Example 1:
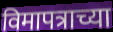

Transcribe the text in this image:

विमापत्राच्या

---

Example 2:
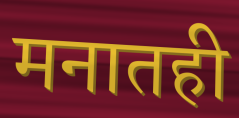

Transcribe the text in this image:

मनातही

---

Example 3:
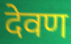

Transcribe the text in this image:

देवण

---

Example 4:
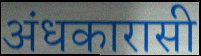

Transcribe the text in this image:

अंधकारासी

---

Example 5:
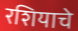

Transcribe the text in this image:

रशियाचे